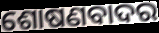
ଶୋଷଣବାଦର